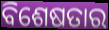
ବିଶେଷତାର